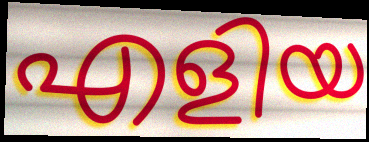
എളിയ